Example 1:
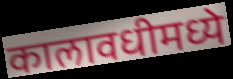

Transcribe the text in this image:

कालावधीमध्ये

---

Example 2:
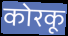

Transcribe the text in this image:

कोरकू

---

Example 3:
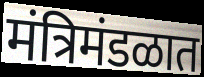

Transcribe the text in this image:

मंत्रिमंडळात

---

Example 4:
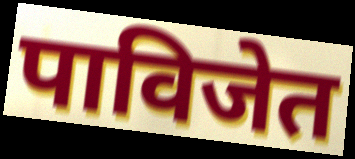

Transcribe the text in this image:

पाविजेत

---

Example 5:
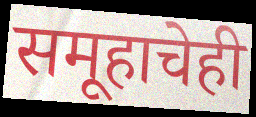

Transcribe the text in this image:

समूहाचेही